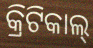
କ୍ରିଟିକାଲ୍